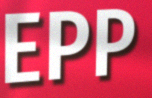
EPP